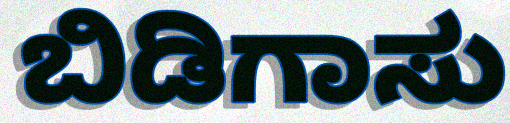
ಬಿಡಿಗಾಸು